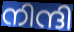
നിന്ദി